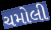
ચમોલી